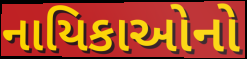
નાયિકાઓનો